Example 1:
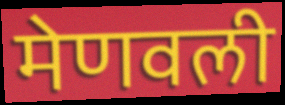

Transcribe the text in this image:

मेणवली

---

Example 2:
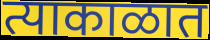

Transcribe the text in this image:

त्याकाळात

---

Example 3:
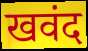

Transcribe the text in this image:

खवंद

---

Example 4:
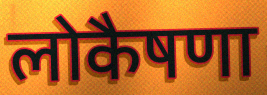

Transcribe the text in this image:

लोकैषणा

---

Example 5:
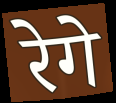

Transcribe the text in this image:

रेगे